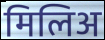
मिलिअ